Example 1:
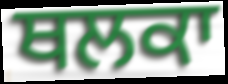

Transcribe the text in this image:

ਥਲਕਾ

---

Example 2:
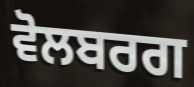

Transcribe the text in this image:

ਵੋਲਬਰਗ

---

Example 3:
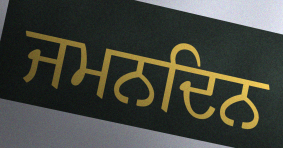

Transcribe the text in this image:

ਜਮਨਦਿਨ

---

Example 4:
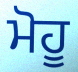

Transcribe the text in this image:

ਮੋਹੂ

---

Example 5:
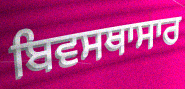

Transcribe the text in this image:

ਬਿਵਸਥਾਸਾਰ